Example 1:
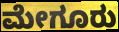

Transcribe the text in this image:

ಮೇಗೂರು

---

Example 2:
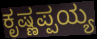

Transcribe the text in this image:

ಕೃಷ್ಣಪ್ಪಯ್ಯ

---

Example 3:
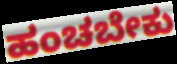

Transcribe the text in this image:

ಹಂಚಬೇಕು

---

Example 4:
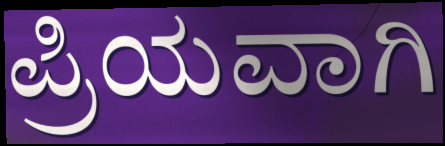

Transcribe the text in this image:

ಪ್ರಿಯವಾಗಿ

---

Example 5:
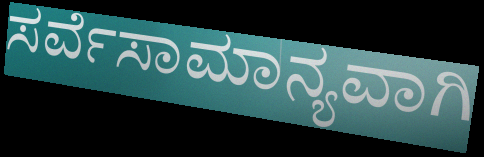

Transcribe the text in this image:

ಸರ್ವೆಸಾಮಾನ್ಯವಾಗಿ